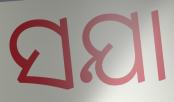
ସଯା